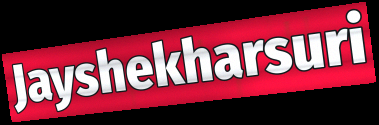
Jayshekharsuri